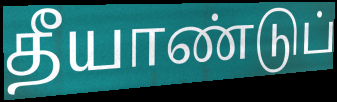
தீயாண்டுப்